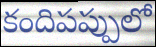
కందిపప్పులో